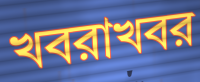
খবরাখবর